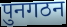
पुनगठन